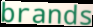
brands